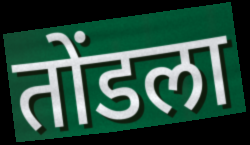
तोंडला